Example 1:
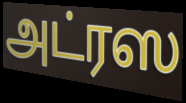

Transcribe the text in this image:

அட்ரஸ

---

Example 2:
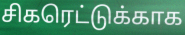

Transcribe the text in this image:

சிகரெட்டுக்காக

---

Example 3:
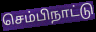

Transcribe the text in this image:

செம்பிநாட்டு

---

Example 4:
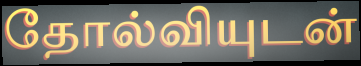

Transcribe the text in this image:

தோல்வியுடன்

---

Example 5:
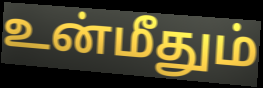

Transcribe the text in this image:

உன்மீதும்